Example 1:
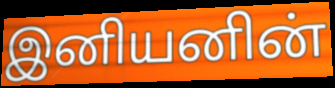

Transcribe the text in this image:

இனியனின்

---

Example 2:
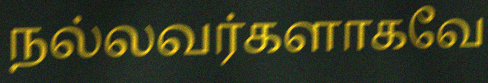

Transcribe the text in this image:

நல்லவர்களாகவே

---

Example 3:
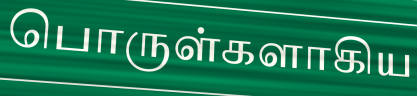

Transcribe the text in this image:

பொருள்களாகிய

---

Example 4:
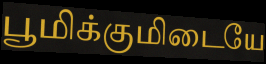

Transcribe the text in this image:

பூமிக்குமிடையே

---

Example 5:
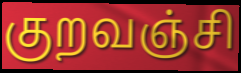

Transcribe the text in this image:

குறவஞ்சி